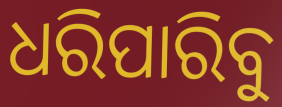
ଧରିପାରିବୁ